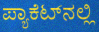
ಪ್ಯಾಕೆಟ್‌ನಲ್ಲಿ